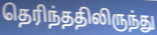
தெரிந்ததிலிருந்து